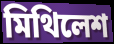
মিথিলেশ